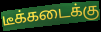
டீக்கடைக்கு